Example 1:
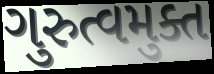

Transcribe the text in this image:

ગુરુત્વમુક્ત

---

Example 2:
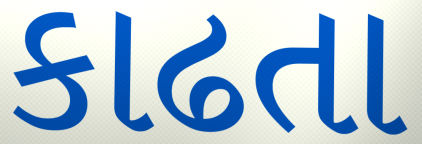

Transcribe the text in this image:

કાઢતા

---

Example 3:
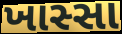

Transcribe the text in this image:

ખાસ્સા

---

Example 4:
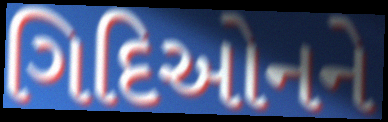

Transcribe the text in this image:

ગિદિઓનને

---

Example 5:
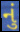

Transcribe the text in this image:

નું